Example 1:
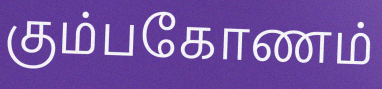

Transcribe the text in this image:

கும்பகோணம்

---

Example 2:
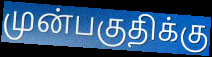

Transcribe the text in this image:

முன்பகுதிக்கு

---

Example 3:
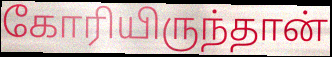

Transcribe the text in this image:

கோரியிருந்தான்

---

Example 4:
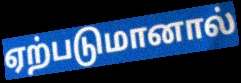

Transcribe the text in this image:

ஏற்படுமானால்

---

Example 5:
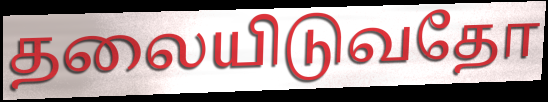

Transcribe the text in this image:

தலையிடுவதோ